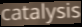
catalysis